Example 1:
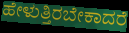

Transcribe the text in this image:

ಹೇಳುತ್ತಿರಬೇಕಾದರೆ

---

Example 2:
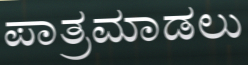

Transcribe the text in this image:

ಪಾತ್ರಮಾಡಲು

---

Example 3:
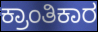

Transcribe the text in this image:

ಕ್ರಾಂತಿಕಾರ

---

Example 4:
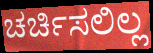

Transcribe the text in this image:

ಚರ್ಚಿಸಲಿಲ್ಲ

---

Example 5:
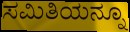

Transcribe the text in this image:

ಸಮಿತಿಯನ್ನೂ